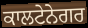
ਕਾਲਟੇਨੇਗਰ